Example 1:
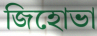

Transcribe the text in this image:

জিহোভা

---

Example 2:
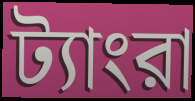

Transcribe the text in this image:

ট্যাংরা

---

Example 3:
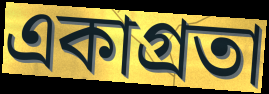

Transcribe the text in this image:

একাগ্রতা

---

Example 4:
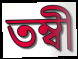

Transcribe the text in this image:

তম্বী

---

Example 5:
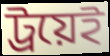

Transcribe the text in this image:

ট্রয়েই